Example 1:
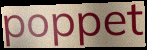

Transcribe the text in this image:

poppet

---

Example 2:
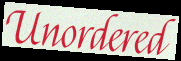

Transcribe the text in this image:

Unordered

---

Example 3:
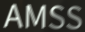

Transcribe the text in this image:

AMSS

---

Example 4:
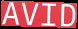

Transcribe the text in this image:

AVID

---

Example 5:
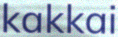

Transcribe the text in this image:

kakkai